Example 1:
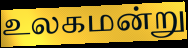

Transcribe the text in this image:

உலகமன்று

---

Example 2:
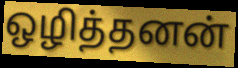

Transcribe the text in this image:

ஒழித்தனன்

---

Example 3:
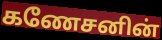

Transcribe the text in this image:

கணேசனின்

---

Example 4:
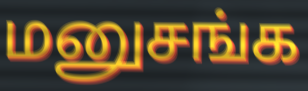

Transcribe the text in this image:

மனுசங்க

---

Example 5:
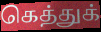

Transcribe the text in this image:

கெத்துக்